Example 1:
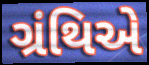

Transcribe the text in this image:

ગ્રંથિએ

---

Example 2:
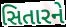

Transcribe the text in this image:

સિતારને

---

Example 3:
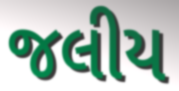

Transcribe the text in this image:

જલીય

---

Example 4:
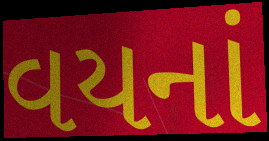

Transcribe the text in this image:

વયનાં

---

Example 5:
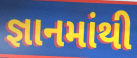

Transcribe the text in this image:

જ્ઞાનમાંથી